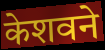
केशवने